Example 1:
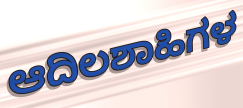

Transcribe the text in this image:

ಆದಿಲಶಾಹಿಗಳ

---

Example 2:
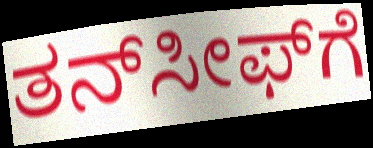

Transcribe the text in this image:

ತನ್‍ಸೀಫ್‍ಗೆ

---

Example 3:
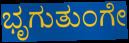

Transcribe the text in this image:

ಭೃಗುತುಂಗೇ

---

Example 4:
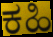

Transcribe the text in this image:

ಕಹಿ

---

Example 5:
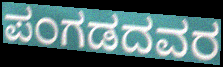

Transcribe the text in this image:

ಪಂಗಡದವರ